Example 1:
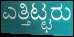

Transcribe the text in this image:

ಎತ್ತಿಟ್ಟರು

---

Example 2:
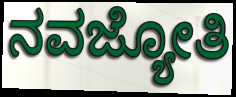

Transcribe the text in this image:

ನವಜ್ಯೋತಿ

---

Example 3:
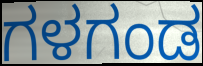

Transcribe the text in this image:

ಗಳಗಂಡ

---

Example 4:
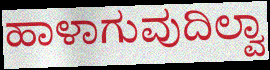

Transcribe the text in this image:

ಹಾಳಾಗುವುದಿಲ್ವಾ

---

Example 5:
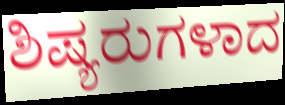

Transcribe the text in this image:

ಶಿಷ್ಯರುಗಳಾದ